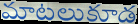
మాటలుకూడ